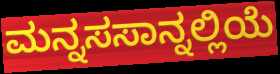
ಮನ್ನಸಸಾನ್ನಲ್ಲಿಯೆ